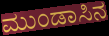
ಮುಂಡಾಸಿನ